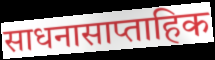
साधनासाप्ताहिक